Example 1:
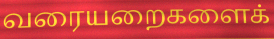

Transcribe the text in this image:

வரையறைகளைக்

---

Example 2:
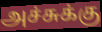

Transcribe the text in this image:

அச்சுக்கு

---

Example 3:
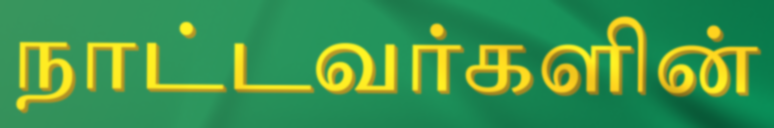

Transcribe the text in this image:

நாட்டவர்களின்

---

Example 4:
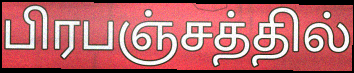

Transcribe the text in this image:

பிரபஞ்சத்தில்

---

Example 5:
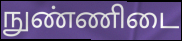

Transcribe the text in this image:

நுண்ணிடை